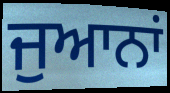
ਜੁਆਨਾਂ